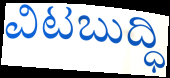
ವಿಟಬುದ್ಧಿ